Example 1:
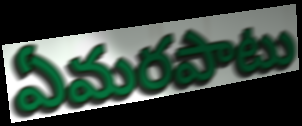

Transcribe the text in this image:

ఏమరపాటు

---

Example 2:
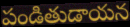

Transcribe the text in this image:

పండితుడాయన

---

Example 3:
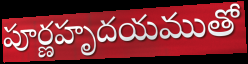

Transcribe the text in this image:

పూర్ణహృదయముతో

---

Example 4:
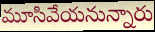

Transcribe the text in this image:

మూసివేయనున్నారు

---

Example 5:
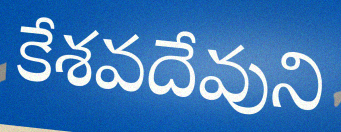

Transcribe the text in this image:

కేశవదేవుని